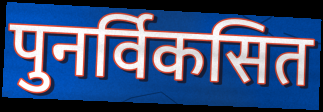
पुनर्विकसित